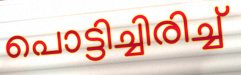
പൊട്ടിച്ചിരിച്ച്